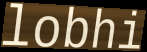
lobhi